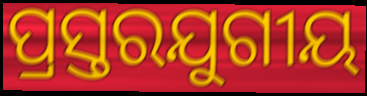
ପ୍ରସ୍ତରଯୁଗୀୟ